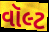
વૉલ્ટ